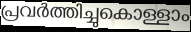
പ്രവർത്തിച്ചുകൊള്ളാം